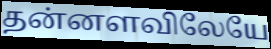
தன்னளவிலேயே